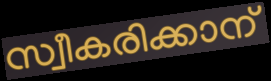
സ്വീകരിക്കാന്